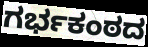
ಗರ್ಭಕಂಠದ